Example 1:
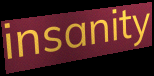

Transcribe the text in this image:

insanity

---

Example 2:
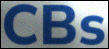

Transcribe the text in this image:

CBs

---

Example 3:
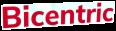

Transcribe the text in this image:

Bicentric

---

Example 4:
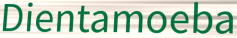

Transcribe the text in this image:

Dientamoeba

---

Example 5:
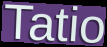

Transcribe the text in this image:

Tatio